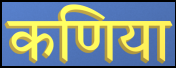
कणिया